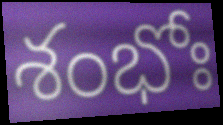
శంభోః